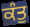
ਕੰਤੁ